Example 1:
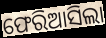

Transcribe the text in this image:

ଫେରିଆସିଲା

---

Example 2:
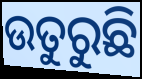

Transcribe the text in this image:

ଉତୁରୁଛି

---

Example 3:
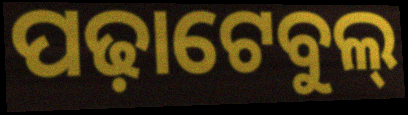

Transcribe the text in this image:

ପଢ଼ାଟେବୁଲ୍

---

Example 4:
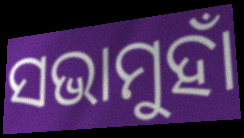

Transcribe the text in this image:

ସଭାମୁହାଁ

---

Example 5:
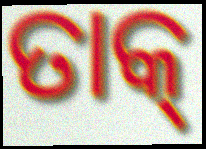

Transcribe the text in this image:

ତାକ୍